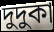
দুদুকা